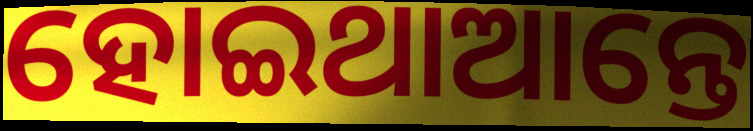
ହୋଇଥାଆନ୍ତେ